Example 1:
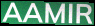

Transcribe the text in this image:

AAMIR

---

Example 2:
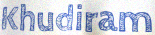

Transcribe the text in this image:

Khudiram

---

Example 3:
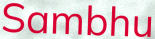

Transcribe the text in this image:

Sambhu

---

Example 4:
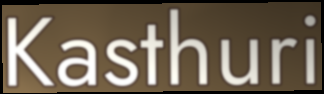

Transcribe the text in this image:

Kasthuri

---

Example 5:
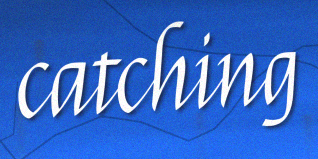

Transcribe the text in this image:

catching